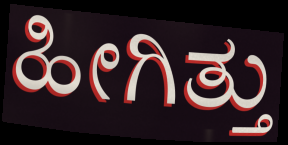
ಹೀಗಿತ್ತು